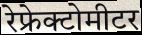
रेफ्रेक्टोमीटर